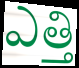
ఎత్తి